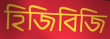
হিজিবিজি